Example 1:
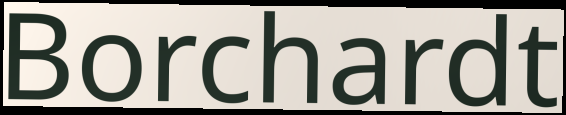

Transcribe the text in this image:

Borchardt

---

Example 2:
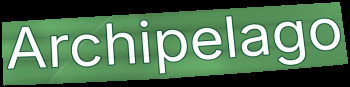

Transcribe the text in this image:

Archipelago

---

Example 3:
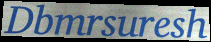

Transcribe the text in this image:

Dbmrsuresh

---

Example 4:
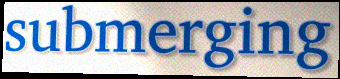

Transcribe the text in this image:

submerging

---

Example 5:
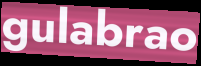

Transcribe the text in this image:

gulabrao